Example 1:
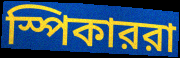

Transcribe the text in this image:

স্পিকাররা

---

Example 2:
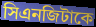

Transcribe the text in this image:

সিএনজিটাকে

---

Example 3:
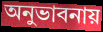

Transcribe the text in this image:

অনুভাবনায়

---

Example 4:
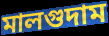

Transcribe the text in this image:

মালগুদাম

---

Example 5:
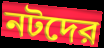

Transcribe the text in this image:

নটদের